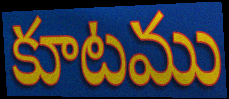
కూటము